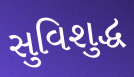
સુવિશુદ્ધ